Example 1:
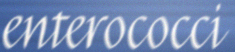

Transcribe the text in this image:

enterococci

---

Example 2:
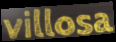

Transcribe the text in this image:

villosa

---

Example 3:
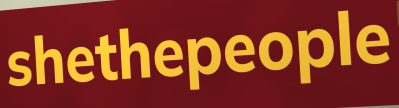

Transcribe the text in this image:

shethepeople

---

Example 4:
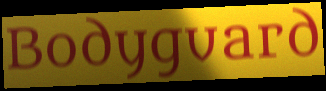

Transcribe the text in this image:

Bodyguard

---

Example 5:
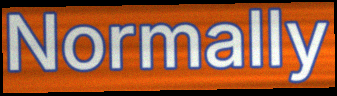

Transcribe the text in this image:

Normally